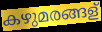
കഴുമരങ്ങള്